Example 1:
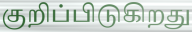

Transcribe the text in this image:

குறிப்பிடுகிறது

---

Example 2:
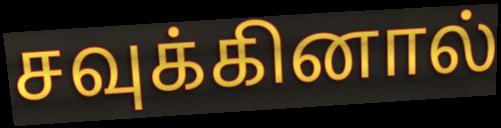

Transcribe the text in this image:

சவுக்கினால்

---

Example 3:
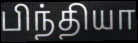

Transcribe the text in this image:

பிந்தியா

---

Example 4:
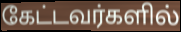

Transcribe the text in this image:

கேட்டவர்களில்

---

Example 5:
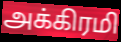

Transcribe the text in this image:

அக்கிரமி